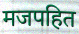
मजपहित